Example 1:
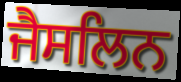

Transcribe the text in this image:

ਜੈਸਲਿਨ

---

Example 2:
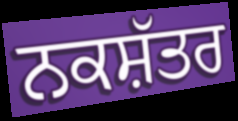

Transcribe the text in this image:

ਨਕਸ਼ੱਤਰ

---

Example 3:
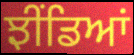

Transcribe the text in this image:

ਝੀਂਡਿਆਂ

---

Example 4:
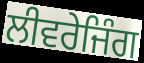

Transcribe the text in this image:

ਲੀਵਰੇਜਿੰਗ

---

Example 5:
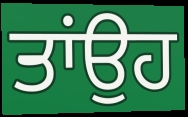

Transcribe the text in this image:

ਤਾਂਉਹ